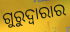
ଗୁରୁଦ୍ୱାରାର